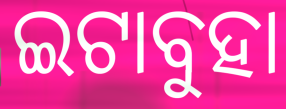
ଇଟାବୁହା